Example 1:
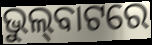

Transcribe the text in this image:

ଭୁଲ୍‌ବାଟରେ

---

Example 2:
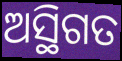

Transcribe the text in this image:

ଅସ୍ଥିଗତ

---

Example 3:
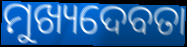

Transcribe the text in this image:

ମୁଖ୍ୟଦେବତା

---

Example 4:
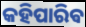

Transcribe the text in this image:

କହିପାରିଵ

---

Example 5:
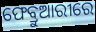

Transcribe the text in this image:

ଫେବ୍ରୁଆରୀରେ